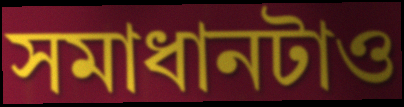
সমাধানটাও